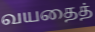
வயதைத்